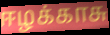
ஈழக்காசு